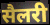
सैलरी